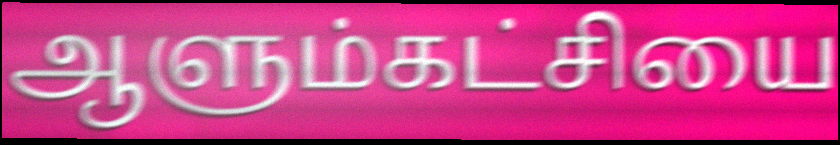
ஆளும்கட்சியை